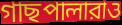
গাছপালারাও